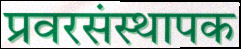
प्रवरसंस्थापक